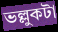
ভল্লুকটা